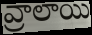
వ్రాలాయి